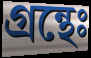
গ্রন্থেঃ